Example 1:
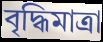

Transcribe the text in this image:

বৃদ্ধিমাত্রা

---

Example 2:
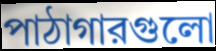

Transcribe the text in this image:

পাঠাগারগুলো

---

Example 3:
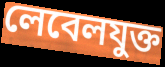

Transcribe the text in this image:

লেবেলযুক্ত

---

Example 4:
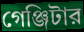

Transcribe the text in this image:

গেঞ্জিটার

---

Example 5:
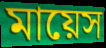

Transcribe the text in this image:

মায়েস